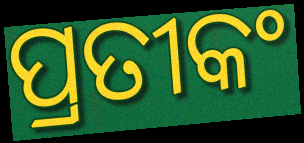
ପ୍ରତୀକଂ